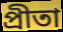
প্রীতা